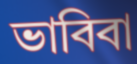
ভাবিবা